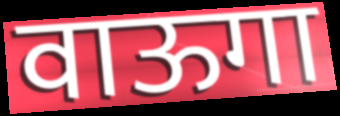
वाऊगा